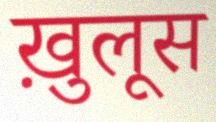
ख़ुलूस